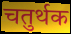
चतुर्थक